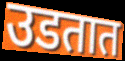
उडतात